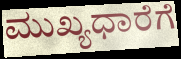
ಮುಖ್ಯಧಾರೆಗೆ